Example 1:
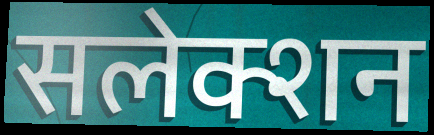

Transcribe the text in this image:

सलेक्शन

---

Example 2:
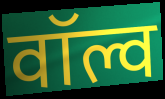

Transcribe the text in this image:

वॉल्व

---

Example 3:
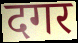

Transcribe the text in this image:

दगर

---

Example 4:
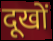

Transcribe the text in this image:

दूखों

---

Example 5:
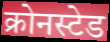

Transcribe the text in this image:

क्रोनस्टेड